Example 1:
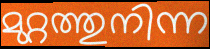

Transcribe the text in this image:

മുറ്റത്തുനിന്ന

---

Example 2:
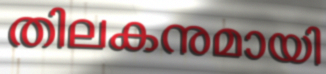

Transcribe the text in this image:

തിലകനുമായി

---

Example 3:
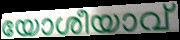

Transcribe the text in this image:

യോശീയാവ്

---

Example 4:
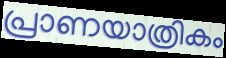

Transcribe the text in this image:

പ്രാണയാത്രികം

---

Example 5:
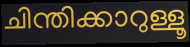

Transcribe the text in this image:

ചിന്തിക്കാറുള്ളൂ